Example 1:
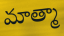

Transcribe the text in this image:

మాత్మా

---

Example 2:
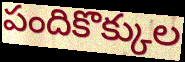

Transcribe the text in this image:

పందికొక్కుల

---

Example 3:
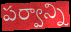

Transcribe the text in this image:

పర్వాన్ని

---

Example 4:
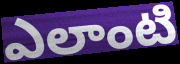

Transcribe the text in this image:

ఎలాంటి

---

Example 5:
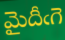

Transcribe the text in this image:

మైదీఁగె